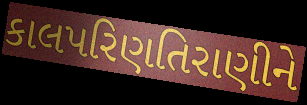
કાલપરિણતિરાણીને